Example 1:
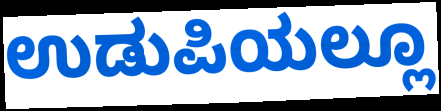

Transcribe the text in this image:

ಉಡುಪಿಯಲ್ಲೂ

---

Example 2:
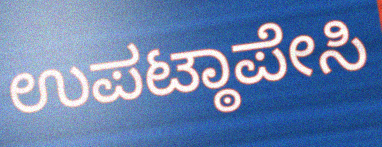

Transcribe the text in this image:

ಉಪಟ್ಠಾಪೇಸಿ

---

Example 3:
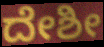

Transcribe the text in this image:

ದೇಶೀ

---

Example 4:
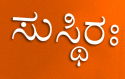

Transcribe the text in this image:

ಸುಸ್ಥಿರಃ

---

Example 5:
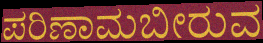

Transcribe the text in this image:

ಪರಿಣಾಮಬೀರುವ